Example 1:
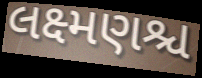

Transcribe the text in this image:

લક્ષ્મણશ્ચ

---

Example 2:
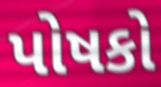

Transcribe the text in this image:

પોષકો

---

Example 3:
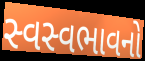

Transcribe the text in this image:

સ્વસ્વભાવનો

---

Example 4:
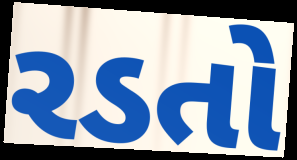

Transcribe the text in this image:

રડતો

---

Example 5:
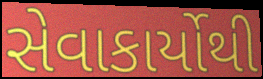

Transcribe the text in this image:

સેવાકાર્યોથી